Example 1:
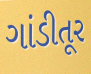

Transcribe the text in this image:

ગાંડીતૂર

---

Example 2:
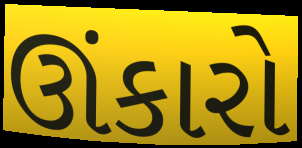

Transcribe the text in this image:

ઊંકારો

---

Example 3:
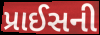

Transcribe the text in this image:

પ્રાઈસની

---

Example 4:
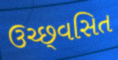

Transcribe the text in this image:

ઉચ્છ્‌વસિત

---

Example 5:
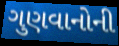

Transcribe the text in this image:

ગુણવાનોની